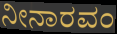
ನೀನಾರವಂ